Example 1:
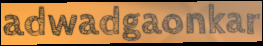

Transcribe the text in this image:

adwadgaonkar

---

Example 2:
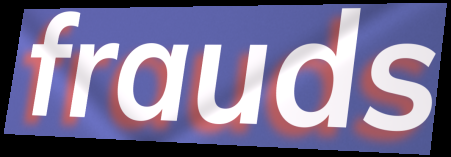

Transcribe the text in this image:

frauds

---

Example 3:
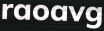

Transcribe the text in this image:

raoavg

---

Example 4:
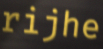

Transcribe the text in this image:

rijhe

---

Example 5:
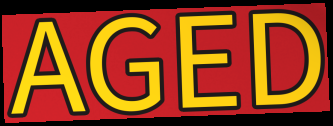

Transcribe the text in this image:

AGED